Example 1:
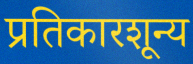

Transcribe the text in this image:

प्रतिकारशून्य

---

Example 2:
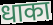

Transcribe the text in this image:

धाका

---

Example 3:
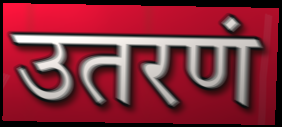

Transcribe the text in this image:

उतरणं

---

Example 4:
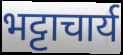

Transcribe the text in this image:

भट्टाचार्य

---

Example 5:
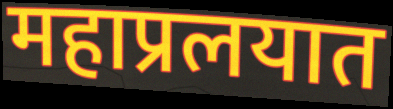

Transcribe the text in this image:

महाप्रलयात